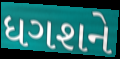
ધગશને